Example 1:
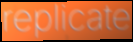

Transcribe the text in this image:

replicate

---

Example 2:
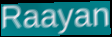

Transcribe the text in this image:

Raayan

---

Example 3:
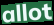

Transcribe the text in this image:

allot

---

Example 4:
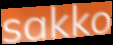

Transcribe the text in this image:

sakko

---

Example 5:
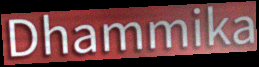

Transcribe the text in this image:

Dhammika